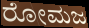
ರೋಮಜ